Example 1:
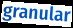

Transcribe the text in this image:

granular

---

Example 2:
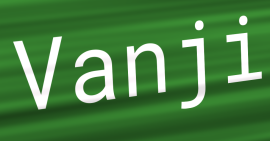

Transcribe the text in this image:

Vanji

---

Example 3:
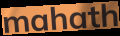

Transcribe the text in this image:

mahath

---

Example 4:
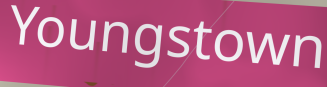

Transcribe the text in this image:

Youngstown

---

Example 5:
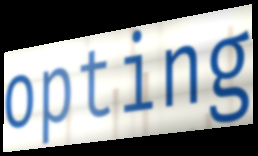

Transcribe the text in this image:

opting